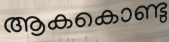
ആകകൊണ്ടു